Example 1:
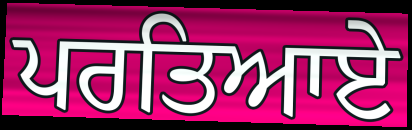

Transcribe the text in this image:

ਪਰਤਿਆਏ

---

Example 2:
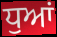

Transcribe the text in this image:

ਧੁਆਂ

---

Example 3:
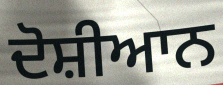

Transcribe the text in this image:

ਦੋਸ਼ੀਆਨ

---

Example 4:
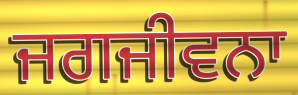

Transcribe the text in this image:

ਜਗਜੀਵਨਾ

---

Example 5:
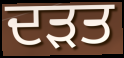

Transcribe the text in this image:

ਦੜਤ